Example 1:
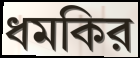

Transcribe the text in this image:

ধমকির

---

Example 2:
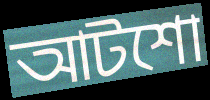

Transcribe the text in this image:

আটশো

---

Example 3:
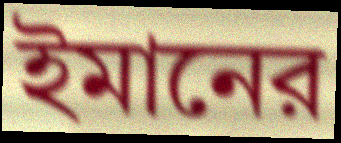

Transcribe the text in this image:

ইমানের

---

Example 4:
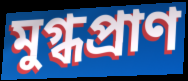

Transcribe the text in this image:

মুগ্ধপ্রাণ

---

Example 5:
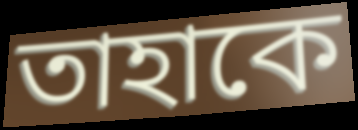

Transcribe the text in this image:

তাহাকে